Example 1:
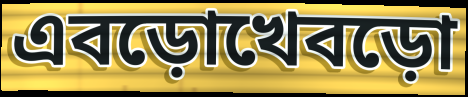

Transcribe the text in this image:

এবড়োখেবড়ো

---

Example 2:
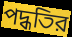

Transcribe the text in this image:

পদ্ধতির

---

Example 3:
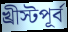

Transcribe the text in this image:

খ্রীস্টপূর্ব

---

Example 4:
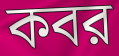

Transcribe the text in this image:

কবর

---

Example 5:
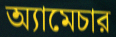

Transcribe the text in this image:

অ্যামেচার